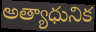
అత్యాధునిక